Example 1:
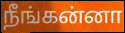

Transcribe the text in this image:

நீங்கன்னா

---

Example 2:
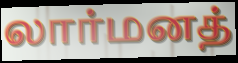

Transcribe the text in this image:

லார்மனத்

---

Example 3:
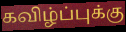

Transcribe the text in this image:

கவிழ்ப்புக்கு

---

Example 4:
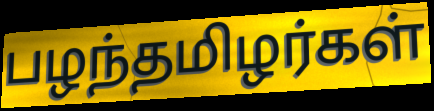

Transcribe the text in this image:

பழந்தமிழர்கள்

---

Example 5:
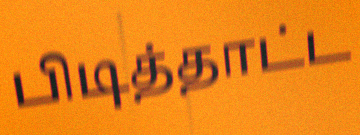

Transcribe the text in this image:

பிடித்தாட்ட